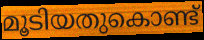
മൂടിയതുകൊണ്ട്